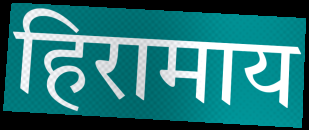
हिरामाय